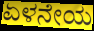
ಏಳನೇಯ